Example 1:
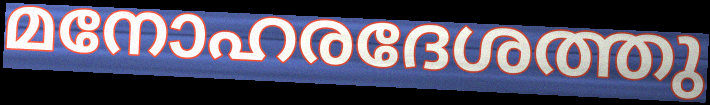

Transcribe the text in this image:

മനോഹരദേശത്തു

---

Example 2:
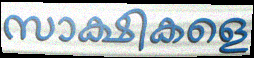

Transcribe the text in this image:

സാക്ഷികളെ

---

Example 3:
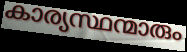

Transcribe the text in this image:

കാര്യസ്ഥന്മാരും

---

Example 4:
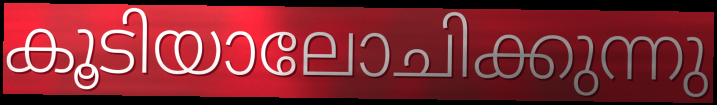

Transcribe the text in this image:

കൂടിയാലോചിക്കുന്നു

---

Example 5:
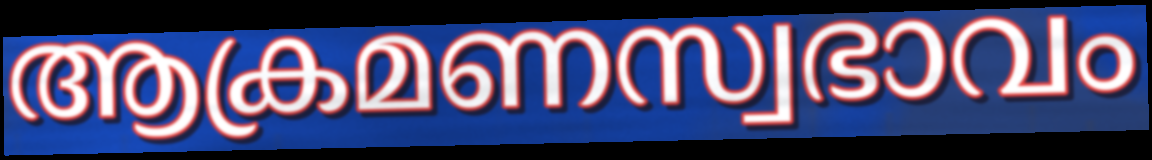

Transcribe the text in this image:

ആക്രമണസ്വഭാവം